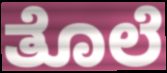
ತೊಲೆ